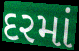
દરમાં